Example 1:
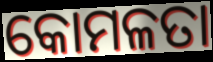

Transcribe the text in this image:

କୋମଳତା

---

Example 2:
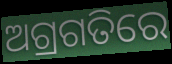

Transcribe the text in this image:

ଅଗ୍ରଗତିରେ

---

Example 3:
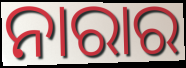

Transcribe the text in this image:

ନାରାର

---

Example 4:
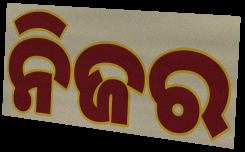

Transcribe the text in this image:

ନିଜର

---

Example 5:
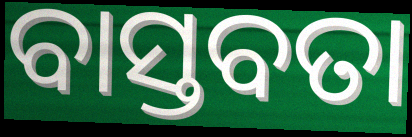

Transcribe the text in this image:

ବାସ୍ତବତା